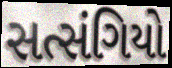
સત્સંગિયો